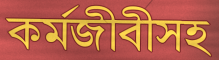
কর্মজীবীসহ